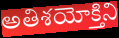
అతిశయోక్తిని